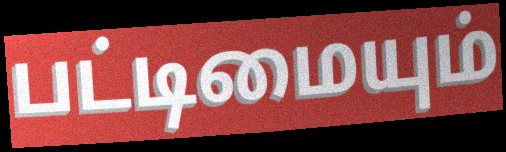
பட்டிமையும்